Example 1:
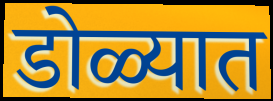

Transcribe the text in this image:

डोळ्यात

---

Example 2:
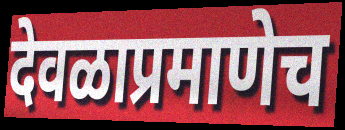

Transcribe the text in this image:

देवळाप्रमाणेच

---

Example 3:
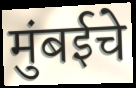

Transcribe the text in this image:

मुंबईचे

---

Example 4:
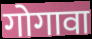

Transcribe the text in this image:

गोगावा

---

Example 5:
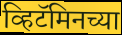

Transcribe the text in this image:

व्हिटॅमिनच्या